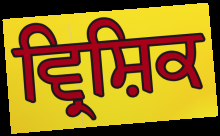
ਵ੍ਰਿਸ਼ਿਕ